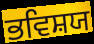
ਭਵਿਸ਼ਯ